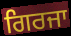
ਗਿਰਜਾ